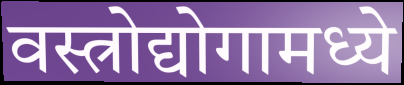
वस्त्रोद्योगामध्ये